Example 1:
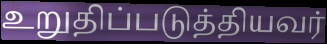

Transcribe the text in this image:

உறுதிப்படுத்தியவர்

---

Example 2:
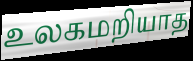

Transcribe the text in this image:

உலகமறியாத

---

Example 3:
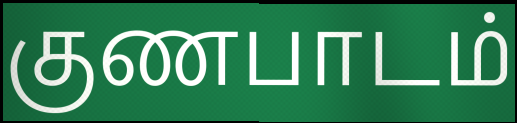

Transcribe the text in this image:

குணபாடம்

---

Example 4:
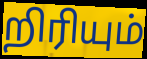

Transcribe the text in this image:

றிரியும்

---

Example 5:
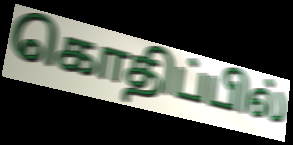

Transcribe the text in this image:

கொதிப்பில்